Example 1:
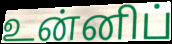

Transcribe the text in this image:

உன்னிப்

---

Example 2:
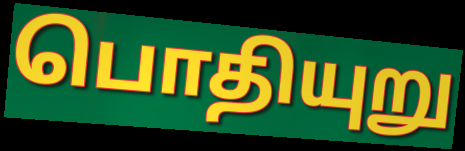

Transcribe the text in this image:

பொதியுறு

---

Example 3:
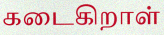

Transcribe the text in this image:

கடைகிறாள்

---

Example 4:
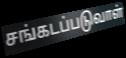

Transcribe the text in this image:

சங்கடப்படுவாள்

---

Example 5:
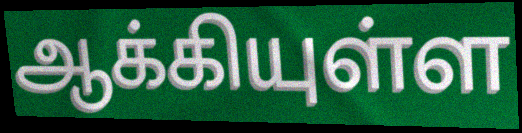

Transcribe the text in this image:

ஆக்கியுள்ள